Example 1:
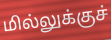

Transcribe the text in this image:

மில்லுக்குச்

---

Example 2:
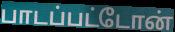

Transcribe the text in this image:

பாடப்பட்டோன்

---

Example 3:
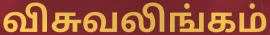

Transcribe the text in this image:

விசுவலிங்கம்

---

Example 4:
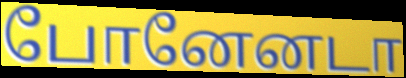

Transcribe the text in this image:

போனேனடா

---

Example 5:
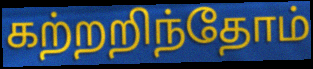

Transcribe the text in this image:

கற்றறிந்தோம்